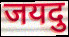
जयदु